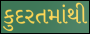
કુદરતમાંથી